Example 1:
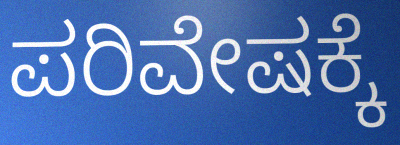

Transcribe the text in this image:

ಪರಿವೇಷಕ್ಕೆ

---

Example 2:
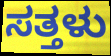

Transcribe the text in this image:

ಸತ್ತಳು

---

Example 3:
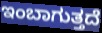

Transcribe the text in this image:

ಇಂಬಾಗುತ್ತದೆ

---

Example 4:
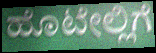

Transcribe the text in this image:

ಹೊಟೇಲ್ಲಿಗೆ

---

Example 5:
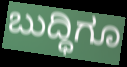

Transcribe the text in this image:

ಬುದ್ಧಿಗೂ